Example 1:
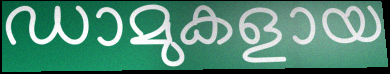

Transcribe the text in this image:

ഡാമുകളായ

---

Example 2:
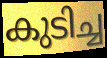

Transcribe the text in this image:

കുടിച്ച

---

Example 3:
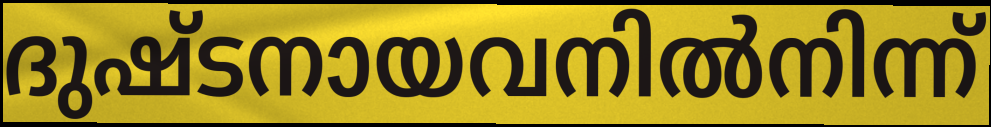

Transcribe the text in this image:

ദുഷ്ടനായവനിൽനിന്ന്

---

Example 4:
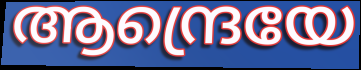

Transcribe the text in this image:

ആന്ദ്രെയേ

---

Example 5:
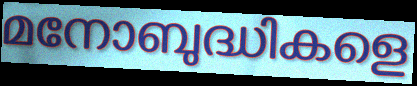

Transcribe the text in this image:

മനോബുദ്ധികളെ